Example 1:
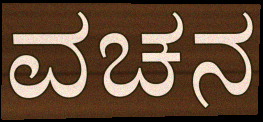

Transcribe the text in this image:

ವಚನ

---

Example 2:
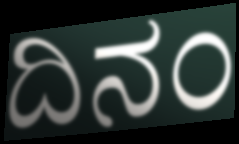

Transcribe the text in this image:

ದಿನಂ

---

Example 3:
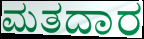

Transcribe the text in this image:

ಮತದಾರ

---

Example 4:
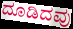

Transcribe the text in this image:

ದೂಡಿದವು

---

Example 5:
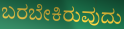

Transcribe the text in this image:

ಬರಬೇಕಿರುವುದು